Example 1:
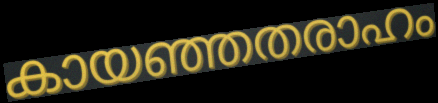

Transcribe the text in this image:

കായഞ്ഞതരാഹം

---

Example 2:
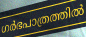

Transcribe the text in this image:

ഗർഭപാത്രത്തിൽ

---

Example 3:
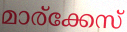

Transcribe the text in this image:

മാര്ക്കേസ്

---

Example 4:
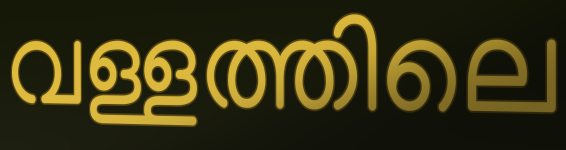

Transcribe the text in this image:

വള്ളത്തിലെ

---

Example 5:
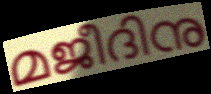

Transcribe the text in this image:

മജീദിനു